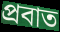
প্রবাত